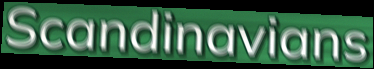
Scandinavians